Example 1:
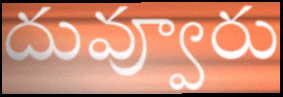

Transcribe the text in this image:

దువ్వూరు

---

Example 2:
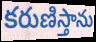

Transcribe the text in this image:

కరుణిస్తాను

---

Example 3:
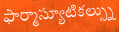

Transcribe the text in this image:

ఫార్మాస్యూటికల్స్ను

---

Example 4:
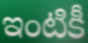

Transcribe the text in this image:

ఇంటికీ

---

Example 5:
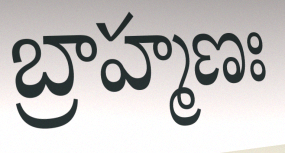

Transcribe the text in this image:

బ్రాహ్మణః